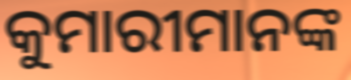
କୁମାରୀମାନଙ୍କ